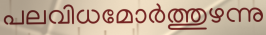
പലവിധമോർത്തുഴന്നു